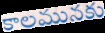
కాలమునకు